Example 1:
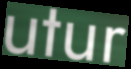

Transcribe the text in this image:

utur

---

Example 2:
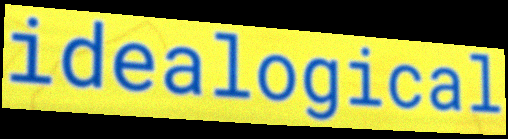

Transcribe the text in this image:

idealogical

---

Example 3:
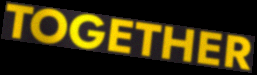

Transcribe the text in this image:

TOGETHER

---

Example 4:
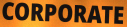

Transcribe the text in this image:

CORPORATE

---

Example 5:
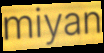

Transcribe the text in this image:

miyan